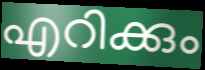
എറിക്കും